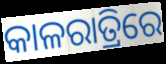
କାଳରାତ୍ରିରେ